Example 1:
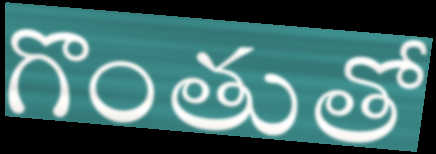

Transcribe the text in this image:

గొంతుతో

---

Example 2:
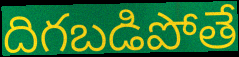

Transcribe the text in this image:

దిగబడిపోతే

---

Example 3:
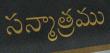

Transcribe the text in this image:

సన్మాత్రము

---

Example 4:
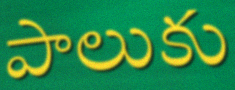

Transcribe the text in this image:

పాలుకు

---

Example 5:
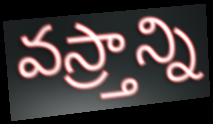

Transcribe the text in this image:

వస్ర్తాన్ని